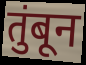
तुंबून